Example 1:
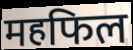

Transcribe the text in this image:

महफिल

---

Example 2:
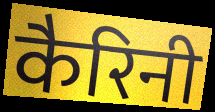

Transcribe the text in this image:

कैरिनी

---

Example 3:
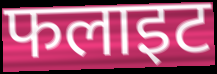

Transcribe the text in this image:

फलाइट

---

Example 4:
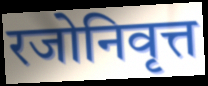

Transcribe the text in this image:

रजोनिवृत्त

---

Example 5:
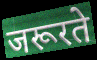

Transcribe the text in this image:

जरूरते